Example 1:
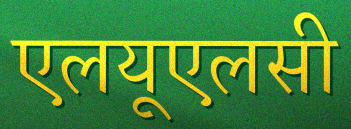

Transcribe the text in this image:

एलयूएलसी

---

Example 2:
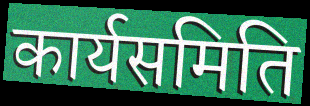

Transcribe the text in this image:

कार्यसमिति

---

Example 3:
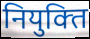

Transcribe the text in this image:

नियुक्‍ति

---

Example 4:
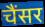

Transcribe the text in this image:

चैंसर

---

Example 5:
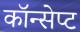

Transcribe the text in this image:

कॉन्सेप्ट